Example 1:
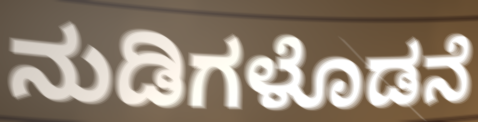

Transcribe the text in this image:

ನುಡಿಗಳೊಡನೆ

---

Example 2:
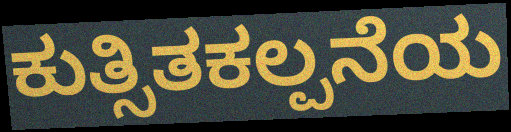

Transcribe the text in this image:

ಕುತ್ಸಿತಕಲ್ಪನೆಯ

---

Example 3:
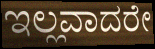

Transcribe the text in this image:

ಇಲ್ಲವಾದರೇ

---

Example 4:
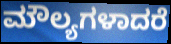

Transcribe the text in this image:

ಮೌಲ್ಯಗಳಾದರೆ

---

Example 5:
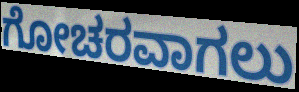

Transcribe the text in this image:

ಗೋಚರವಾಗಲು